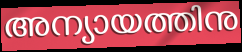
അന്യായത്തിനു